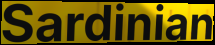
Sardinian